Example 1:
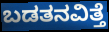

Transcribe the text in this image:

ಬಡತನವಿತ್ತೆ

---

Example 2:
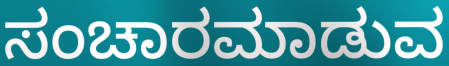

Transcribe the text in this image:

ಸಂಚಾರಮಾಡುವ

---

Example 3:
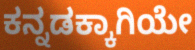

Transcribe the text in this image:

ಕನ್ನಡಕ್ಕಾಗಿಯೇ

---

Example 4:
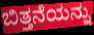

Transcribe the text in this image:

ಬಿತ್ತನೆಯನ್ನು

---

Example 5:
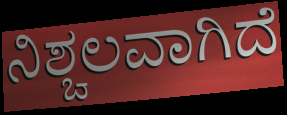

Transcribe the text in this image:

ನಿಶ್ಚಲವಾಗಿದೆ